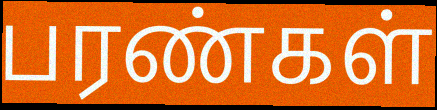
பரண்கள்